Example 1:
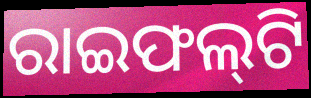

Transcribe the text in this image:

ରାଇଫଲ୍‍ଟି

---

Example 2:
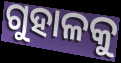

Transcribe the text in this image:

ଗୁହାଳକୁ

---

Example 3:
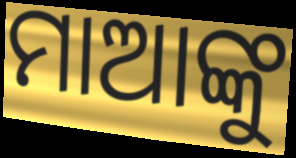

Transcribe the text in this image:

ମାଆଙ୍କୁ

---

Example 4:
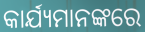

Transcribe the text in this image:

କାର୍ଯ୍ୟମାନଙ୍କରେ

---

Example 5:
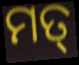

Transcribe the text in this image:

ମତ୍